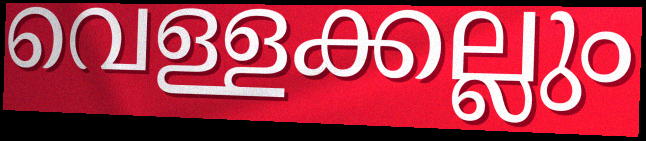
വെള്ളക്കല്ലും